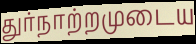
துர்நாற்றமுடைய